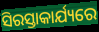
ସିରସ୍ତାକାର୍ଯ୍ୟରେ